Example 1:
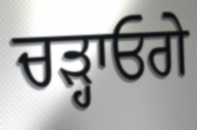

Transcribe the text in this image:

ਚੜ੍ਹਾਓਗੇ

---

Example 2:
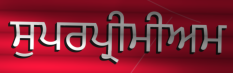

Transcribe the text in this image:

ਸੁਪਰਪ੍ਰੀਮੀਅਮ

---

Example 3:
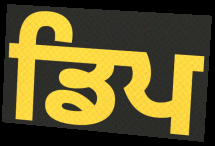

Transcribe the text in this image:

ਡਿਪ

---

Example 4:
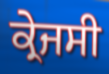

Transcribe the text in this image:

ਕ੍ਰੇਜਸੀ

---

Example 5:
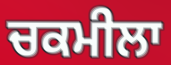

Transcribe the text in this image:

ਚਕਮੀਲਾ